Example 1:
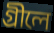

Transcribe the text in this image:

গ্রীলে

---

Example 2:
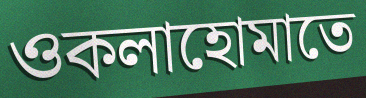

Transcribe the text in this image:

ওকলাহোমাতে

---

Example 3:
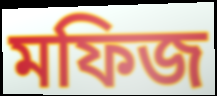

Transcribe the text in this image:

মফিজ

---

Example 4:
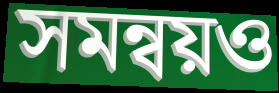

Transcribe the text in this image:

সমন্বয়ও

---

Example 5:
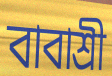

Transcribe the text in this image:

বাবাশ্রী